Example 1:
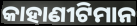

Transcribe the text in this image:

କାହାଣୀଟିମାନ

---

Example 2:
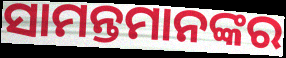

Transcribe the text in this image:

ସାମନ୍ତମାନଙ୍କର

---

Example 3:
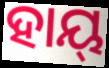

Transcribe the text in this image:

ହାୟ୍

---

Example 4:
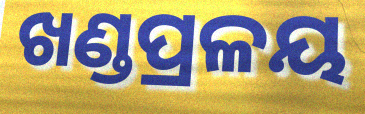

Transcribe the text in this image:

ଖଣ୍ଡପ୍ରଳୟ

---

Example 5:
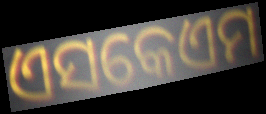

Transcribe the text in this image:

ଏସକେଏମ